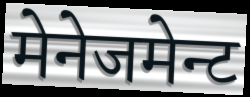
मेनेजमेन्ट